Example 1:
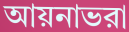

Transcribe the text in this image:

আয়নাভরা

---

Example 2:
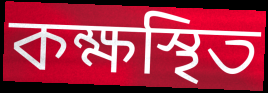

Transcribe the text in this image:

কক্ষস্থিত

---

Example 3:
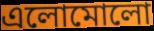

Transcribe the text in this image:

এলোমোলো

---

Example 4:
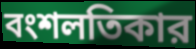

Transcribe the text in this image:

বংশলতিকার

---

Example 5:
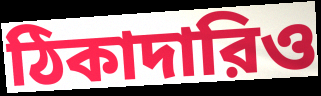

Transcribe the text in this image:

ঠিকাদারিও